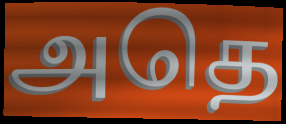
அதெ